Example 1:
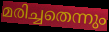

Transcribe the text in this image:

മരിച്ചതെന്നും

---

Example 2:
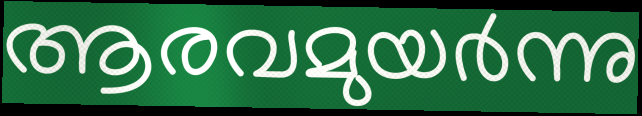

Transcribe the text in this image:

ആരവമുയർന്നു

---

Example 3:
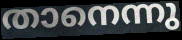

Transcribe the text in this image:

താനെന്നു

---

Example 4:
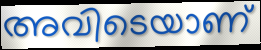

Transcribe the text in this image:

അവിടെയാണ്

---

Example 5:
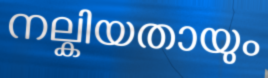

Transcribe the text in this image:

നല്കിയതായും